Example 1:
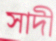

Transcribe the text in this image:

সাদী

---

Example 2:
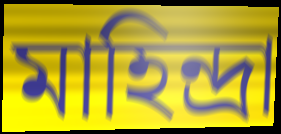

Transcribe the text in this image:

মাহিন্দ্রা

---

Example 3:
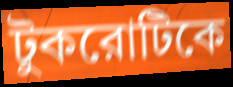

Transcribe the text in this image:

টুকরোটিকে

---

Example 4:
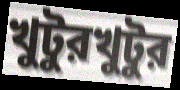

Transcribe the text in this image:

খুটুরখুটুর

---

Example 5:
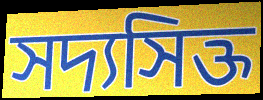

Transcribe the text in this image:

সদ্যসিক্ত